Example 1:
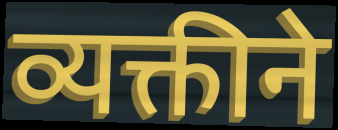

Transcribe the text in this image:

व्यक्तीने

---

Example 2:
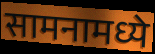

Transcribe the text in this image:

सामनामध्ये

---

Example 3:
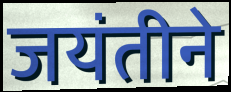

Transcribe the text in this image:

जयंतीने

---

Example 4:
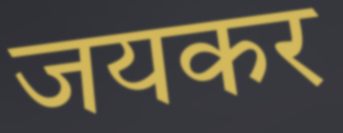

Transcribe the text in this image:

जयकर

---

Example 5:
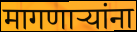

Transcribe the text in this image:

मागणार्‍यांना